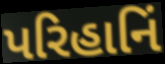
પરિહાનિં